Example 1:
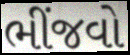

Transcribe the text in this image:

ભીંજવો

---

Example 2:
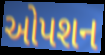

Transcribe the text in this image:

ઓપશન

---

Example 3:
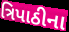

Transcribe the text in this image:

ત્રિપાઠીના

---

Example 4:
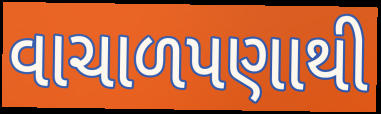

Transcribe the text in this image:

વાચાળપણાથી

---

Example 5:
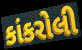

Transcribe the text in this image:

કાંકરોલી